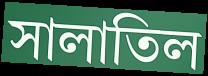
সালাতিল